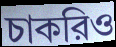
চাকরিও